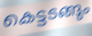
കെട്ടടങ്ങും